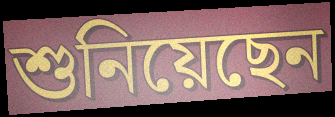
শুনিয়েছেন